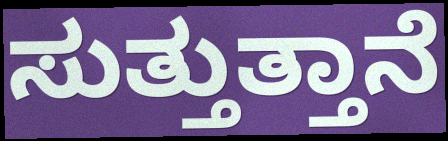
ಸುತ್ತುತ್ತಾನೆ